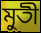
মুতী